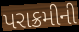
પરાક્રમીની